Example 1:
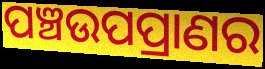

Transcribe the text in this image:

ପଞ୍ଚଉପପ୍ରାଣର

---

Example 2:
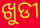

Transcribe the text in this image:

ଖୁଡୀ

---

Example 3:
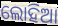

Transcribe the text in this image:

ଲୋହିଆ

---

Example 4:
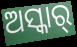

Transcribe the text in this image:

ଅସ୍କାର୍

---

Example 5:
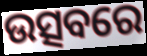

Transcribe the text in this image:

ଉତ୍ସବରେ